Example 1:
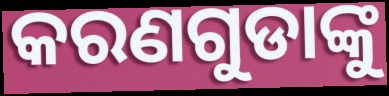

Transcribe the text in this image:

କରଣଗୁଡାଙ୍କୁ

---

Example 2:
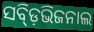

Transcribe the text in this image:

ସବ୍ଡ଼ିଭିଜନାଲ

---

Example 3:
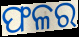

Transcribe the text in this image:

ଫଳର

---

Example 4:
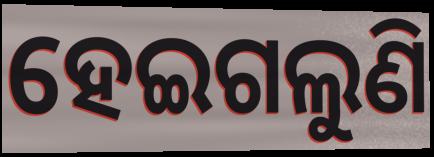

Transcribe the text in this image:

ହେଇଗଲୁଣି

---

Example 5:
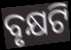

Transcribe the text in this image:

ବୃକ୍ଷଟି